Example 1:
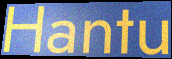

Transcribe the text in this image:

Hantu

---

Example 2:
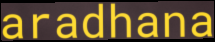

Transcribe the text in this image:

aradhana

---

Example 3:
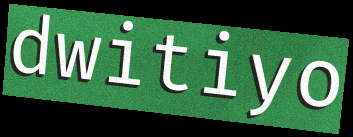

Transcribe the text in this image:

dwitiyo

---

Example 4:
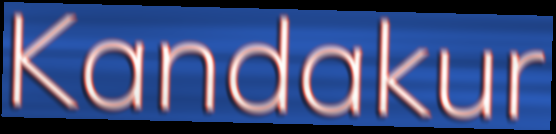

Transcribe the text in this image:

Kandakur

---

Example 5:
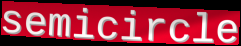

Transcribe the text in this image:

semicircle